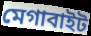
মেগাবাইট